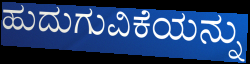
ಹುದುಗುವಿಕೆಯನ್ನು